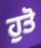
ਹੁਤੋ